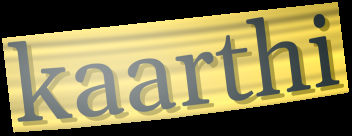
kaarthi